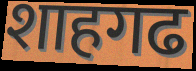
शाहगढ